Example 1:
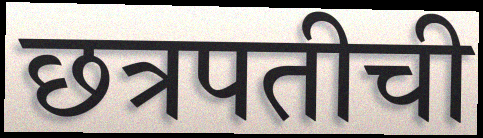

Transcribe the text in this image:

छत्रपतीची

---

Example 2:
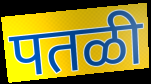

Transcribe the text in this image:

पतळी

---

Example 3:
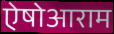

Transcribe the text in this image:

ऐषोआराम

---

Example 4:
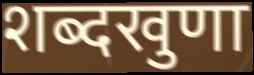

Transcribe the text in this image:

शब्दखुणा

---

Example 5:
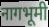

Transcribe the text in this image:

नागभूमी